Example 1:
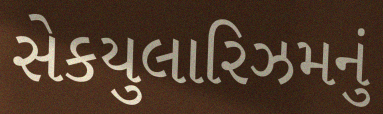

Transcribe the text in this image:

સેકયુલારિઝમનું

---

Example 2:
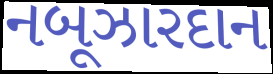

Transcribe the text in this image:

નબૂઝારદાન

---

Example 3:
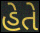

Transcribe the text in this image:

હેતે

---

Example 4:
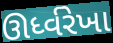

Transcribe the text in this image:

ઊર્ધ્વરેખા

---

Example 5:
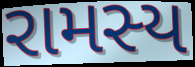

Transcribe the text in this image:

રામસ્ય